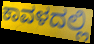
ಕಾವಳದಲ್ಲಿ